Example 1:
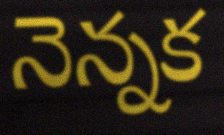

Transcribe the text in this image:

నెన్నక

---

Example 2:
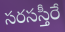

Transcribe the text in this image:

సరసస్తీరే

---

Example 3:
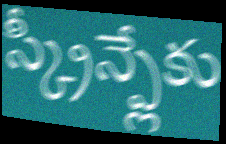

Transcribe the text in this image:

స్క్రీన్ప్లేకు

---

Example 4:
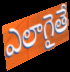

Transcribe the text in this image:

ఎలాగైతే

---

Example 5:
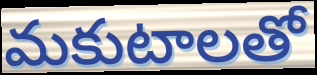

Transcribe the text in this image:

మకుటాలతో